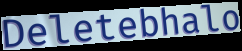
Deletebhalo